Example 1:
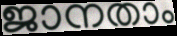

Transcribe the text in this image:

ജാനതാം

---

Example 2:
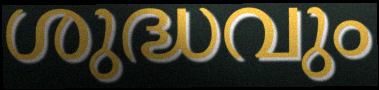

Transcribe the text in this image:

ശുദ്ധവും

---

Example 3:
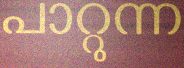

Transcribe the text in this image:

പാറ്റുന്ന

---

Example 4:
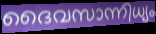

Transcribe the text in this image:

ദൈവസാന്നിധ്യം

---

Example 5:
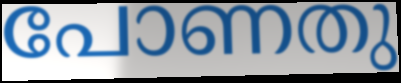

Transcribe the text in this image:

പോണതു